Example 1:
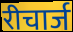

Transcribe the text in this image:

रीचार्ज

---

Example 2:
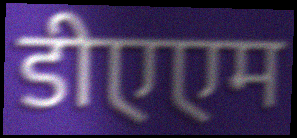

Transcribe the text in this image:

डीएएम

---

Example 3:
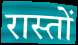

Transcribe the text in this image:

रास्‍तों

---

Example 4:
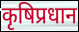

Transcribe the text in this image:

कृषिप्रधान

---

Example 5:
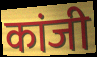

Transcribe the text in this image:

कांजी